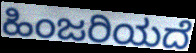
ಹಿಂಜರಿಯದೆ